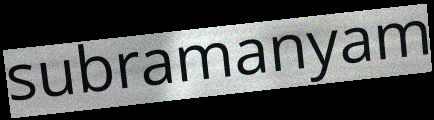
subramanyam